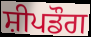
ਸ਼ੀਪਡੌਗ